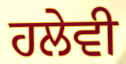
ਹਲੇਵੀ